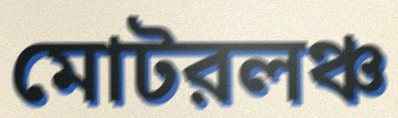
মোটরলঞ্চ